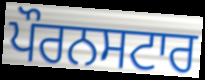
ਪੌਰਨਸਟਾਰ